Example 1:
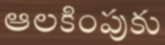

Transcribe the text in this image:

ఆలకింపుకు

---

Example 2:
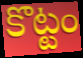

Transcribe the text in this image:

కొట్టం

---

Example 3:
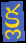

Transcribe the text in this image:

క్ల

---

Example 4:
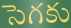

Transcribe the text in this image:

సెగకు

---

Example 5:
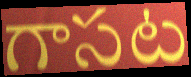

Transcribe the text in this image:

గాసట